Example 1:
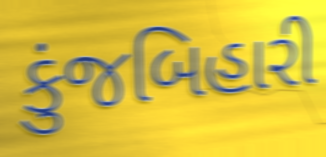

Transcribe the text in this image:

કુંજબિહારી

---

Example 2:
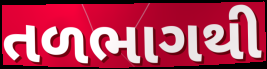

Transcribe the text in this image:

તળભાગથી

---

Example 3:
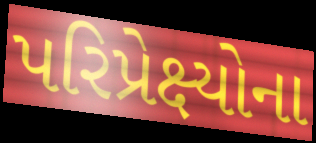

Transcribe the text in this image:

પરિપ્રેક્ષ્યોના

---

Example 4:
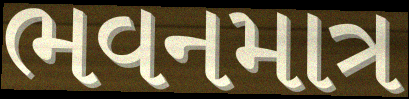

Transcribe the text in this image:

ભવનમાત્ર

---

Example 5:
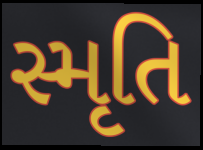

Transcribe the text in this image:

સ્મૃતિ